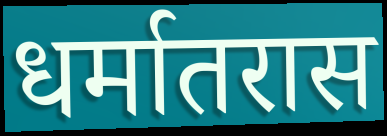
धर्मातरास